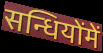
सन्धियोंमें